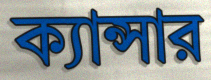
ক্যান্সার